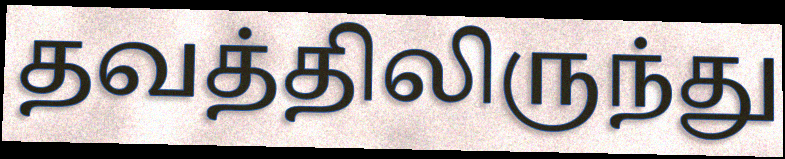
தவத்திலிருந்து